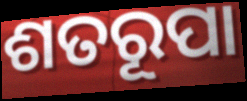
ଶତରୂପା